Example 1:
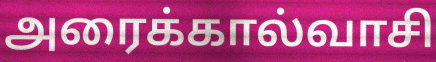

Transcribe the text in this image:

அரைக்கால்வாசி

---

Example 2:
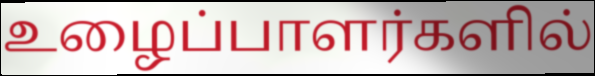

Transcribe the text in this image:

உழைப்பாளர்களில்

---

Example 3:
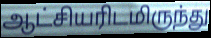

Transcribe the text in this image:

ஆட்சியரிடமிருந்து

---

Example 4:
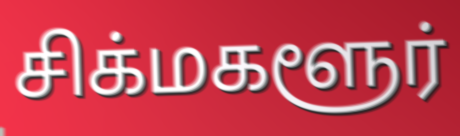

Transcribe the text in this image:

சிக்மகளூர்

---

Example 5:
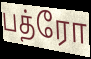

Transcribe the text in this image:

பத்ரோ